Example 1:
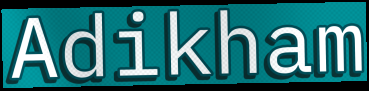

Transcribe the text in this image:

Adikham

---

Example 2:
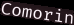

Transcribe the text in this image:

Comorin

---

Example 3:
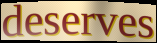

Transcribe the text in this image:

deserves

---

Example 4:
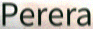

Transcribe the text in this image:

Perera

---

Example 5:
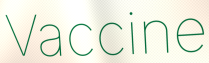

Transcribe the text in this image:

Vaccine